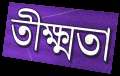
তীক্ষ্মতা